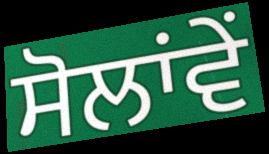
ਸੋਲਾਂਵੇਂ